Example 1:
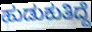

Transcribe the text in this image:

ಹುಡುಕುತಿದ್ದೆ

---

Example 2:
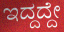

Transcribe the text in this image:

ಇದ್ದದ್ದೇ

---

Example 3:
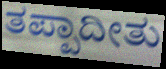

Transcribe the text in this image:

ತಪ್ಪಾದೀತು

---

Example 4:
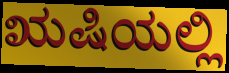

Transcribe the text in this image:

ಋಷಿಯಲ್ಲಿ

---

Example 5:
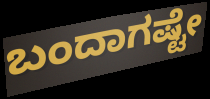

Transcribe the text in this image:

ಬಂದಾಗಷ್ಟೇ